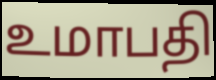
உமாபதி